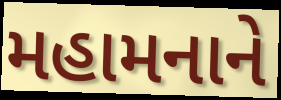
મહામનાને